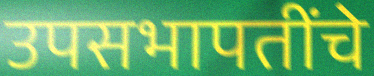
उपसभापतींचे